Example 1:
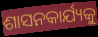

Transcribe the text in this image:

ଶାସନକାର୍ଯ୍ୟକୁ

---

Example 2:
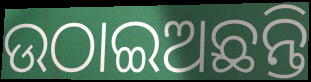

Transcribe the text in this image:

ଉଠାଇଅଛନ୍ତି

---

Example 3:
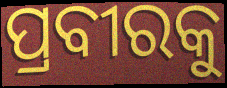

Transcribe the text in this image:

ପ୍ରବୀରକୁ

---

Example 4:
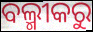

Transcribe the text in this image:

ବଲ୍ମୀକରୁ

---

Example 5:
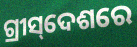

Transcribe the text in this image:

ଗ୍ରୀସ୍‌ଦେଶରେ